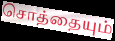
சொத்தையும்